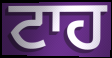
ਟਾਹ